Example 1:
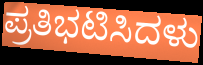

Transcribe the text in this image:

ಪ್ರತಿಭಟಿಸಿದಳು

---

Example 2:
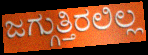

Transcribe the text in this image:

ಜಗ್ಗುತ್ತಿರಲಿಲ್ಲ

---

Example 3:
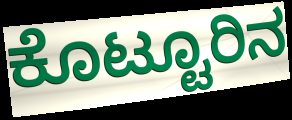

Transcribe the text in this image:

ಕೊಟ್ಟೂರಿನ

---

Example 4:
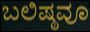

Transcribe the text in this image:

ಬಲಿಷ್ಠವೂ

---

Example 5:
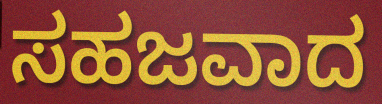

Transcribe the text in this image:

ಸಹಜವಾದ